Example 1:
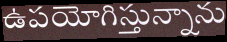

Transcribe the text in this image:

ఉపయోగిస్తున్నాను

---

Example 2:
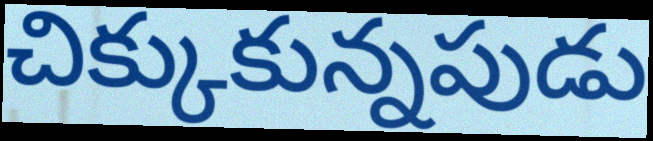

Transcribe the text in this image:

చిక్కుకున్నపుడు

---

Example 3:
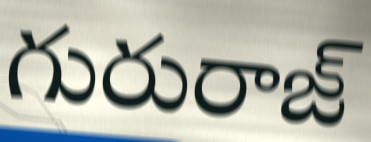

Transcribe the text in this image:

గురురాజ్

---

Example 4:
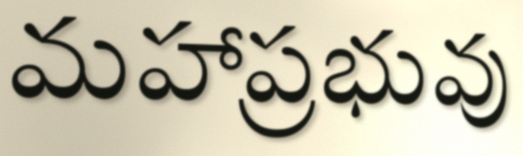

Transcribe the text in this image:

మహాప్రభువు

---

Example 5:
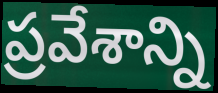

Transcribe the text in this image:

ప్రవేశాన్ని